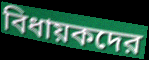
বিধায়কদের